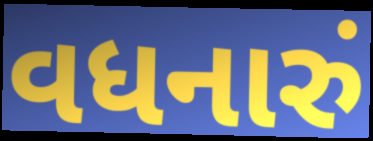
વધનારું